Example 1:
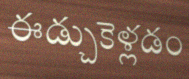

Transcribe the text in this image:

ఈడ్చుకెళ్లడం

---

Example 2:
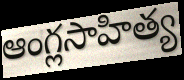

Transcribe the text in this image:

ఆంగ్లసాహిత్య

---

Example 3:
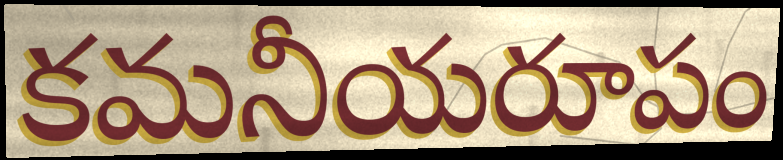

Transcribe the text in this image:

కమనీయరూపం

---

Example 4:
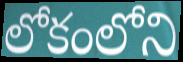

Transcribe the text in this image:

లోకంలోని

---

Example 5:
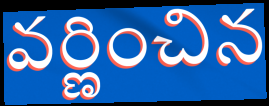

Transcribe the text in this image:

వర్ణించిన